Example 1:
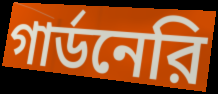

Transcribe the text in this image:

গার্ডনেরি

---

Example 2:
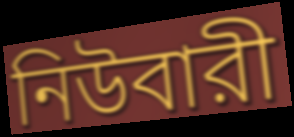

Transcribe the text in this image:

নিউবারী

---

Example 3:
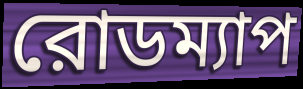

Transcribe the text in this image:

রোডম্যাপ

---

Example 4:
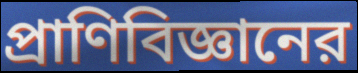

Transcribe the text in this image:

প্রাণিবিজ্ঞানের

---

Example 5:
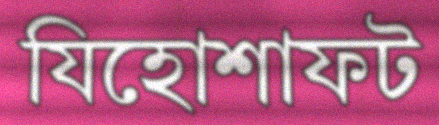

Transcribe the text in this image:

যিহোশাফট